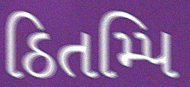
ઠિતમ્પિ